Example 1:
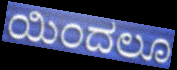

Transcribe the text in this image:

ಯಿಂದಲೂ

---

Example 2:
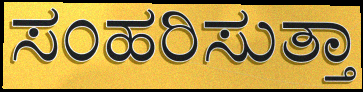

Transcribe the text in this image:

ಸಂಹರಿಸುತ್ತಾ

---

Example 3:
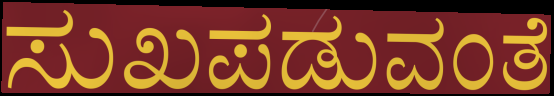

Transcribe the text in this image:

ಸುಖಪಡುವಂತೆ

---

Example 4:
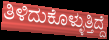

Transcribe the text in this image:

ತಿಳಿದುಕೊಳ್ಳುತ್ತಿದ್ದೆ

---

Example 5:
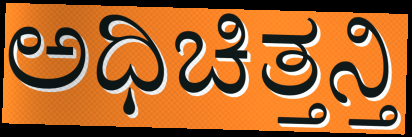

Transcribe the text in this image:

ಅಧಿಚಿತ್ತನ್ತಿ